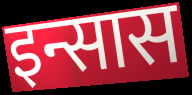
इन्सास